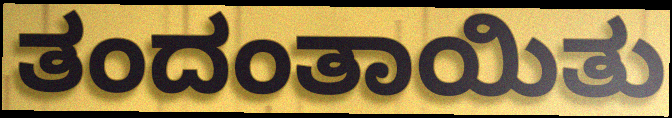
ತಂದಂತಾಯಿತು